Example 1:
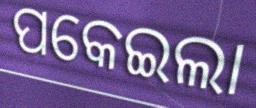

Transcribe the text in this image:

ପକେଇଲା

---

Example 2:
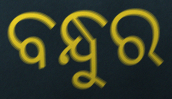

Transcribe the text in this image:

ବନ୍ଧୁର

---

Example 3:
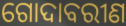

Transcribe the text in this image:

ଗୋଦାବରୀଣ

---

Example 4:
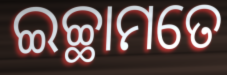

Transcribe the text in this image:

ଇଚ୍ଛାମତେ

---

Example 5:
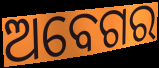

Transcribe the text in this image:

ଅବେଗର